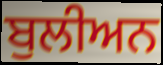
ਬੁਲੀਅਨ